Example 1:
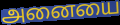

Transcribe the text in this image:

அனையை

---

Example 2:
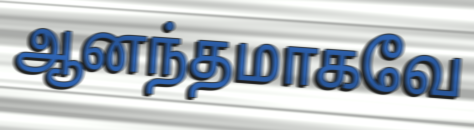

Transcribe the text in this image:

ஆனந்தமாகவே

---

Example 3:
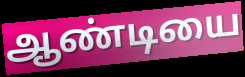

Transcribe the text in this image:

ஆண்டியை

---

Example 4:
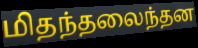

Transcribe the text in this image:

மிதந்தலைந்தன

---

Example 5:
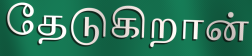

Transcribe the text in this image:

தேடுகிறான்